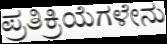
ಪ್ರತಿಕ್ರಿಯೆಗಳೇನು